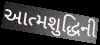
આત્મશુદ્ધિની